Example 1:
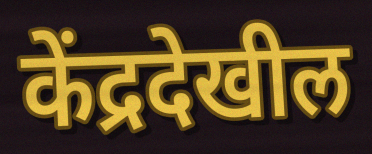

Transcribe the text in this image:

केंद्रदेखील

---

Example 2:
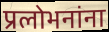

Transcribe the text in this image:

प्रलोभनांना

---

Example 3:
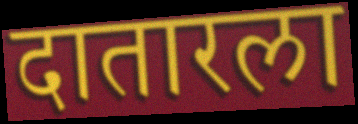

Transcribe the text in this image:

दातारला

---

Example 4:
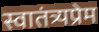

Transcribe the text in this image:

स्वातंत्र्यप्रेम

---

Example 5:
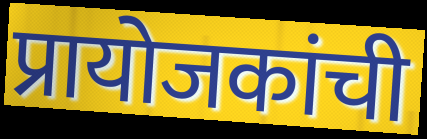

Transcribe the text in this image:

प्रायोजकांची